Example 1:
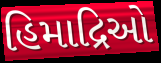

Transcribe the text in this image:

હિમાદ્રિઓ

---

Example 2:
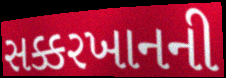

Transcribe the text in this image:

સક્કરખાનની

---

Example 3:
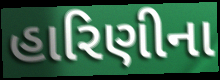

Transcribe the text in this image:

હારિણીના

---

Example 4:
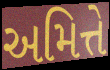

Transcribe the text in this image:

અમિત્તે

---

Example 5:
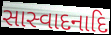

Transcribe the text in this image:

સાસ્વાદનાદિ